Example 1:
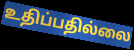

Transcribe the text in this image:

உதிப்பதில்லை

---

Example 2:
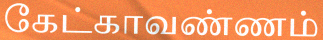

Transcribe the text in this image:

கேட்காவண்ணம்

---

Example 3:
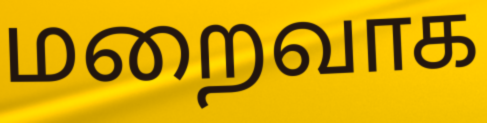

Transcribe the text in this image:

மறைவாக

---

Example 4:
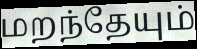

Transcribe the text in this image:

மறந்தேயும்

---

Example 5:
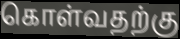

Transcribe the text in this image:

கொள்வதற்கு